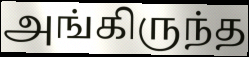
அங்கிருந்த